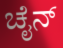
ಚೈನ್